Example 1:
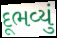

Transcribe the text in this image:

દૂભવ્યું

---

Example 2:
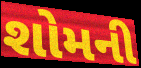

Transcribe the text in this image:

શોમની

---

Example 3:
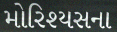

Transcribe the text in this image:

મોરિશ્યસના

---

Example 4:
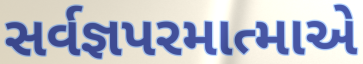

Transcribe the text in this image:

સર્વજ્ઞપરમાત્માએ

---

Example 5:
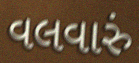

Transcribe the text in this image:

વલવારું